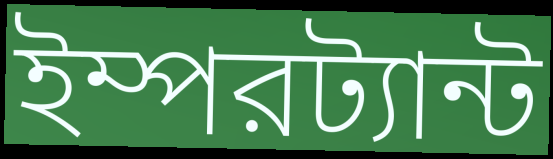
ইম্পরট্যান্ট